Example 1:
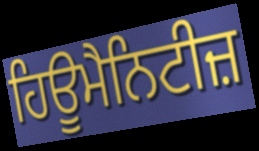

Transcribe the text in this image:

ਹਿਊਮੈਨਿਟੀਜ਼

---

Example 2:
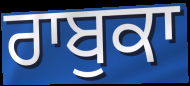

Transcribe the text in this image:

ਰਾਬੁਕਾ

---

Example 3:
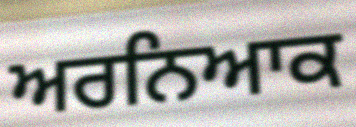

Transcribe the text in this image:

ਅਰਨਿਆਕ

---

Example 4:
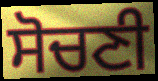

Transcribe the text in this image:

ਸੋਚਣੀ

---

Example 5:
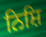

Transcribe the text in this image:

ਨਿਸ਼ਿ